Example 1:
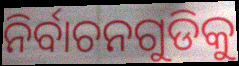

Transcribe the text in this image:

ନିର୍ବାଚନଗୁଡିକୁ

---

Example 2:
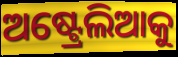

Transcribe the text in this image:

ଅଷ୍ଟ୍ରେଲିଆକୁ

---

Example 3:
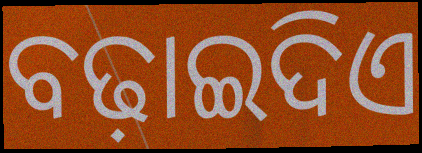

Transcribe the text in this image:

ବଢ଼ାଇଦିଏ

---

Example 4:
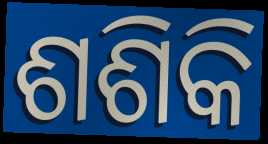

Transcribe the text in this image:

ଶଶିକି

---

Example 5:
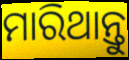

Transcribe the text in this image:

ମାରିଥାନ୍ତୁ